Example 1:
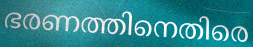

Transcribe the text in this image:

ഭരണത്തിനെതിരെ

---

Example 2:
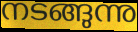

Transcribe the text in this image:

നടങ്ങുന്നു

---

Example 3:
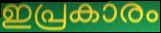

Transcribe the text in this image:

ഇപ്രകാരം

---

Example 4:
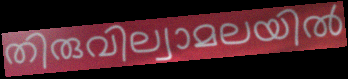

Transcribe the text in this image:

തിരുവില്വാമലയിൽ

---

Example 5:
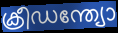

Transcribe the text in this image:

ക്രീഡന്ത്യോ